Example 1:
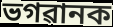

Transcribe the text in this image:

ভগৱানক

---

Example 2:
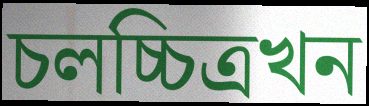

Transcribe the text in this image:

চলচ্চিত্ৰখন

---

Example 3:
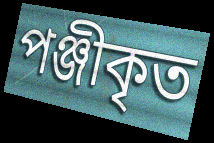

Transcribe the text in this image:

পঞ্জীকৃত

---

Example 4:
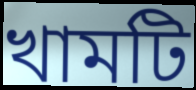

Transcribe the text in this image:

খামটি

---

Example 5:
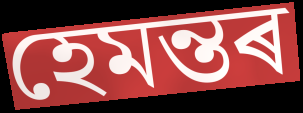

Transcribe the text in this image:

হেমন্তৰ